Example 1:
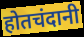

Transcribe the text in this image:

होतचंदानी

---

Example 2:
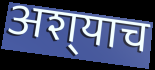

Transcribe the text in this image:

अश्याच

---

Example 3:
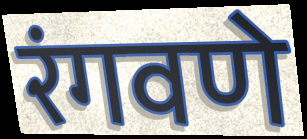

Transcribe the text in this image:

रंगवणे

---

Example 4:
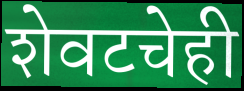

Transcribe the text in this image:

शेवटचेही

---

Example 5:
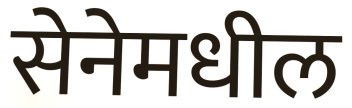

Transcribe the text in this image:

सेनेमधील